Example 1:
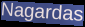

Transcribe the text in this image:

Nagardas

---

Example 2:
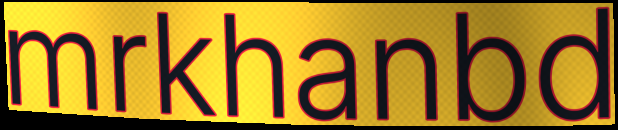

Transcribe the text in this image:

mrkhanbd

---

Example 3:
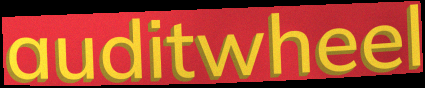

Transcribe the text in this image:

auditwheel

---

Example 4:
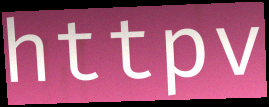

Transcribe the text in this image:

httpv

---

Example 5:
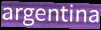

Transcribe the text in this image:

argentina